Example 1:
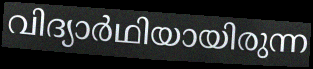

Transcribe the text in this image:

വിദ്യാർഥിയായിരുന്ന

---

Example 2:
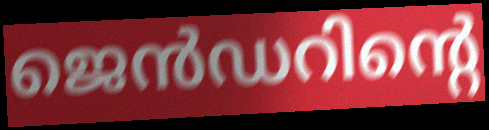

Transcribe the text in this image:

ജെൻഡറിന്റെ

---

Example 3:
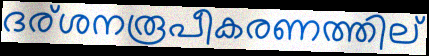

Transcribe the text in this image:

ദര്ശനരൂപീകരണത്തില്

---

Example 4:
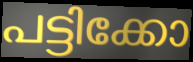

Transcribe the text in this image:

പട്ടിക്കോ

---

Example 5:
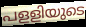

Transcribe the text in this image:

പളളിയുടെ